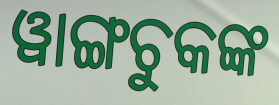
ୱାଙ୍ଗଚୁକଙ୍କ